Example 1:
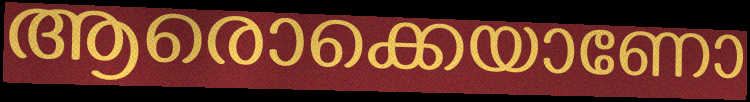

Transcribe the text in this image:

ആരൊക്കെയാണോ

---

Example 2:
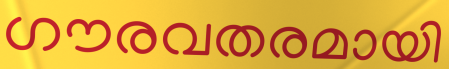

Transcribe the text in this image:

ഗൗരവതരമായി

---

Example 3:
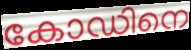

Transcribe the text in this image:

കോഡിനെ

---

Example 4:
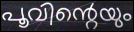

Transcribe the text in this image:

പൂവിന്റെയും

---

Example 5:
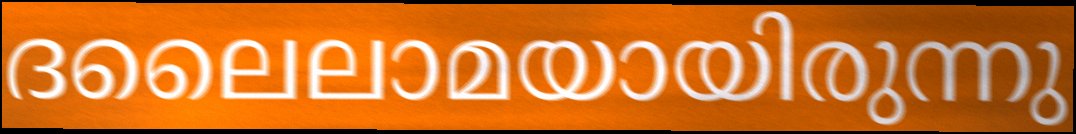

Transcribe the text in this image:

ദലൈലാമയായിരുന്നു